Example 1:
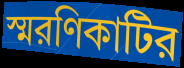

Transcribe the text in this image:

স্মরণিকাটির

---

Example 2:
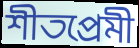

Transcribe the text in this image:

শীতপ্রেমী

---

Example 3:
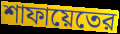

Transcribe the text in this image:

শাফায়েতের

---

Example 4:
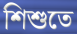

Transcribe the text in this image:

শিশুতে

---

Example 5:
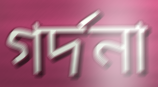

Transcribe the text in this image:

গর্দনা